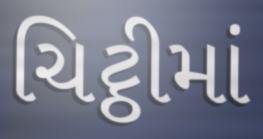
ચિટ્ઠીમાં